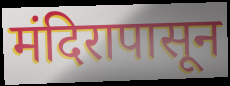
मंदिरापासून